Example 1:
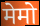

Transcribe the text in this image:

मेमो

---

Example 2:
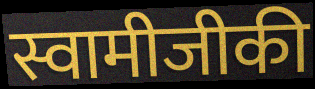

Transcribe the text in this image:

स्वामीजीकी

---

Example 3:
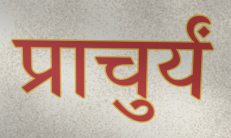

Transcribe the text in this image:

प्राचुर्यं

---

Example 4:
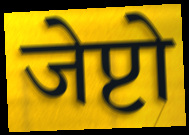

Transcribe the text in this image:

जेप्टो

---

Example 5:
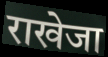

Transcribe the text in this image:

राखेजा